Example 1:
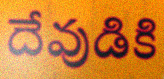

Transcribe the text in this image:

దేవుడికి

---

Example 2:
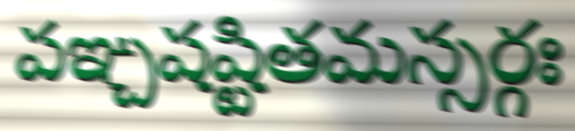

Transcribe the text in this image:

పఞ్చషష్టితమస్సర్గః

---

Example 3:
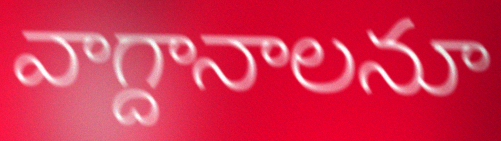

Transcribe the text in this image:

వాగ్దానాలనూ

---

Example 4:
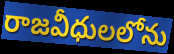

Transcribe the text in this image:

రాజవీధులలోను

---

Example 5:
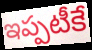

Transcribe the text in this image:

ఇప్పటీకే